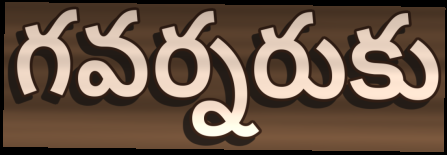
గవర్నరుకు